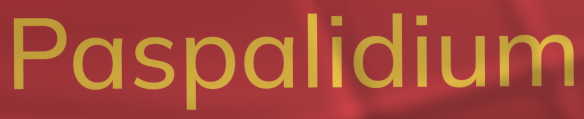
Paspalidium